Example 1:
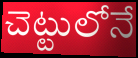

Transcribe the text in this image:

చెట్టులోనే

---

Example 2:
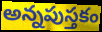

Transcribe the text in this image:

అన్నపుస్తకం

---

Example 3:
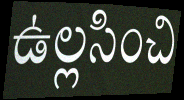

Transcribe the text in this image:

ఉల్లసించి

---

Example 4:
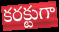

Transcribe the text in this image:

కరక్టుగా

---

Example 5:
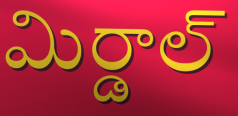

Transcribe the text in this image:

మిర్డాల్